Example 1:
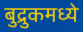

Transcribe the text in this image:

बुद्रुकमध्ये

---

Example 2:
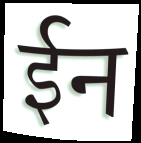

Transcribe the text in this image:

ईन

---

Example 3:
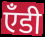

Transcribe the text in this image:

ऍंडी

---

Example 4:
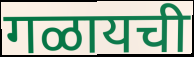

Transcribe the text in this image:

गळायची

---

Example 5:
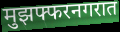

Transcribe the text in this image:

मुझफ्फरनगरात